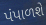
પંપાળશે